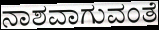
ನಾಶವಾಗುವಂತೆ